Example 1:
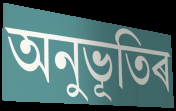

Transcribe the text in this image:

অনুভূতিৰ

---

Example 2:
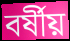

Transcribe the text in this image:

বৰ্ষীয়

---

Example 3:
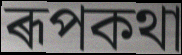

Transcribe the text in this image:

ৰূপকথা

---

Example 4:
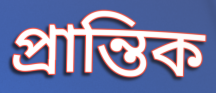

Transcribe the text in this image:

প্ৰান্তিক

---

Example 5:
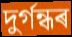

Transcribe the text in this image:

দুৰ্গন্ধৰ